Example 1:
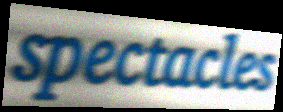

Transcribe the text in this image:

spectacles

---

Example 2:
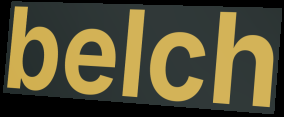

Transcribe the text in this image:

belch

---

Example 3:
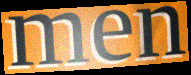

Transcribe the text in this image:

men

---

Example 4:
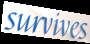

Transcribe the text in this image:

survives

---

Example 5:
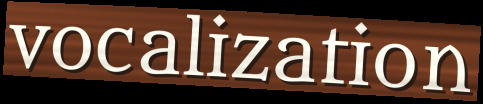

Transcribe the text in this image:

vocalization